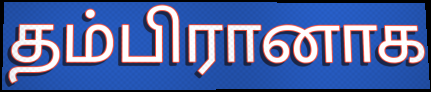
தம்பிரானாக